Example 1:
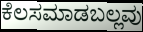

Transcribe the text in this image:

ಕೆಲಸಮಾಡಬಲ್ಲವು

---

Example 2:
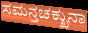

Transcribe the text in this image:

ಸಮನ್ತಚಕ್ಖುನಾ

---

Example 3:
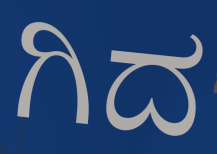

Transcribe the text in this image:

ಗಿದ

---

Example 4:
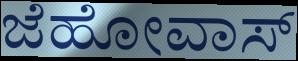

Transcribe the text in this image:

ಜೆಹೋವಾಸ್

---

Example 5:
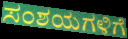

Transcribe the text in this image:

ಸಂಶಯಗಳಿಗೆ